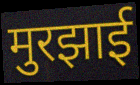
मुरझाई